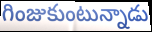
గింజుకుంటున్నాడు